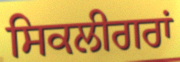
ਸਿਕਲੀਗਰਾਂ